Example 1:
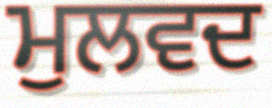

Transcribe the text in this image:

ਮੁਲਵਦ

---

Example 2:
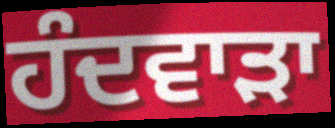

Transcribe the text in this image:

ਹੰਦਵਾੜਾ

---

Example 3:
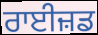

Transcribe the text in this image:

ਰਾਈਜ਼ਡ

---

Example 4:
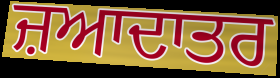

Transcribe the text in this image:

ਜ਼ਆਦਾਤਰ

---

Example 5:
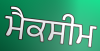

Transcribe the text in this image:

ਮੈਕਸੀਮ